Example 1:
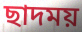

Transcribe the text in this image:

ছাদময়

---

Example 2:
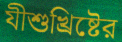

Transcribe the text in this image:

যীশুখ্রিষ্টের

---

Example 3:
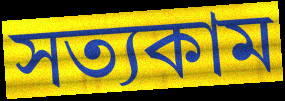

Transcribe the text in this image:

সত্যকাম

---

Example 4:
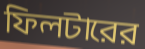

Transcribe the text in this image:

ফিলটারের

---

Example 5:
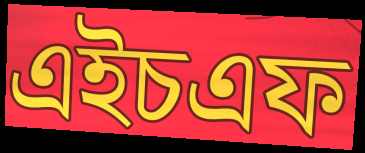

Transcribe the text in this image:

এইচএফ